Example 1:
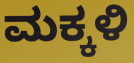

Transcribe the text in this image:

ಮಕ್ಕಳಿ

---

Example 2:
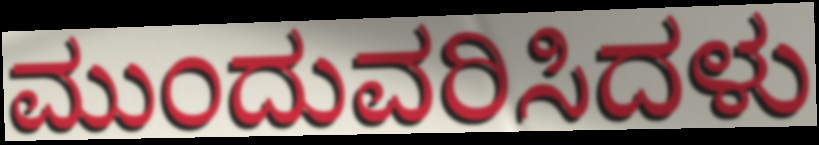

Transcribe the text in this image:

ಮುಂದುವರಿಸಿದಳು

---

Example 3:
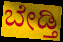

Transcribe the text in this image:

ಬೇಡ್ತಿ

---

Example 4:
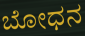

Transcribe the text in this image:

ಬೋಧನ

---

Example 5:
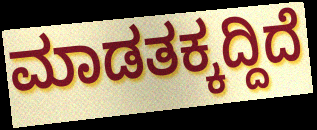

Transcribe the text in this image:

ಮಾಡತಕ್ಕದ್ದಿದೆ